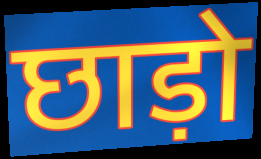
छाड़ो